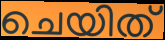
ചെയിത്